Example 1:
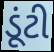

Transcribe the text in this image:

ડૂંટી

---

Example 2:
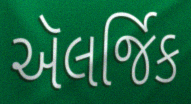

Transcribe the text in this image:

ઍલર્જિક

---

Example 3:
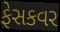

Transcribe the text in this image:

ફેસકવર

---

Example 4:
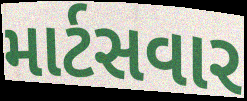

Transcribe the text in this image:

માર્ટસવાર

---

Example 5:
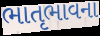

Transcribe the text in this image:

ભાતૃભાવના